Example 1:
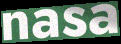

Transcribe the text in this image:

nasa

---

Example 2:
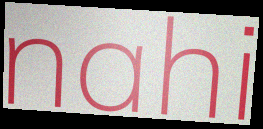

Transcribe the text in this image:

nahi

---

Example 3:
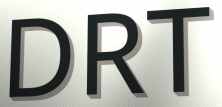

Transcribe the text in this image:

DRT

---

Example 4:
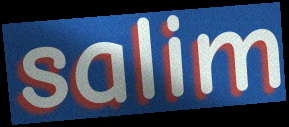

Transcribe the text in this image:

salim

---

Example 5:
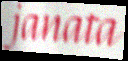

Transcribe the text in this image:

janata